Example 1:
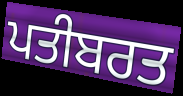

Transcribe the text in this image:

ਪਤੀਬਰਤ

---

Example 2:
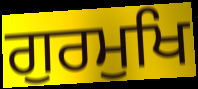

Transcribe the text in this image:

ਗੁਰਮੁਖਿ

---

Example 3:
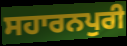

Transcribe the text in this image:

ਸਹਾਰਨਪੁਰੀ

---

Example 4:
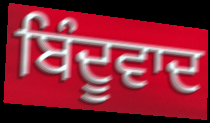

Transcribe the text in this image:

ਬਿੰਦੂਵਾਦ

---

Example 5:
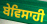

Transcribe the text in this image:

ਬੇਵਿਸਾਹੀ